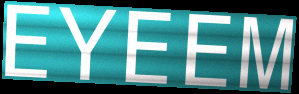
EYEEM